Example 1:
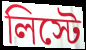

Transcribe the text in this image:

লিস্টে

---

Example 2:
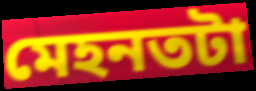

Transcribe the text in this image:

মেহনতটা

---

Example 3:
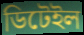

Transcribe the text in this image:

ডিটেইল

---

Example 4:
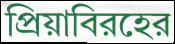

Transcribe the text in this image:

প্রিয়াবিরহের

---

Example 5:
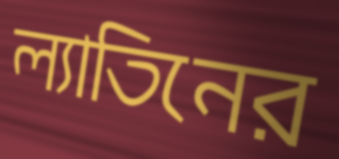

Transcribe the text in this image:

ল্যাতিনের